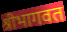
श्रीभागवत